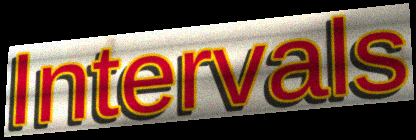
Intervals